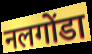
नलगोंडा